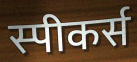
स्पीकर्स